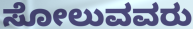
ಸೋಲುವವರು